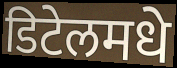
डिटेलमधे